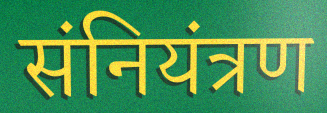
संनियंत्रण